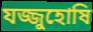
যজ্জুহোষি